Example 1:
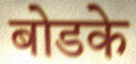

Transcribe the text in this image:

बोडके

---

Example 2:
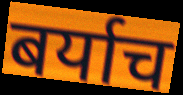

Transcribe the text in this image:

बर्याच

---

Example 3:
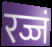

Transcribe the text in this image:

रज्जं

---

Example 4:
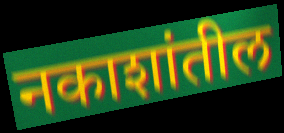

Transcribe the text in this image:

नकाशांतील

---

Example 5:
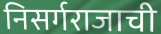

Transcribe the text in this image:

निसर्गराजाची